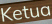
Ketua